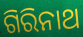
ଗିରିନାଥ